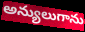
అన్యులుగాను